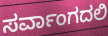
ಸರ್ವಾಂಗದಲಿ